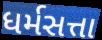
ધર્મસત્તા